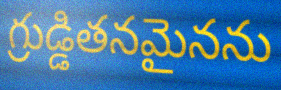
గ్రుడ్డితనమైనను